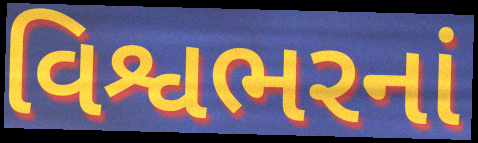
વિશ્વભરનાં